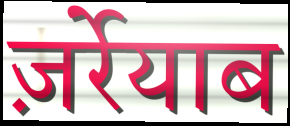
ज़र्रेयाब